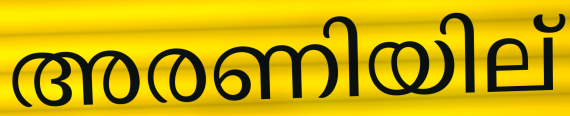
അരണിയില്